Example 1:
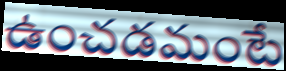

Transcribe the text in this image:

ఉంచడమంటే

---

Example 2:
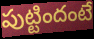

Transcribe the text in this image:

పుట్టిందంటే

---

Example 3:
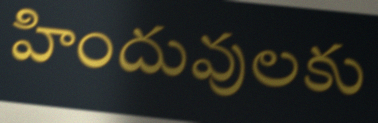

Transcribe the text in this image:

హిందువులకు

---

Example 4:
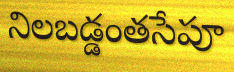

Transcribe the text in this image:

నిలబడ్డంతసేపూ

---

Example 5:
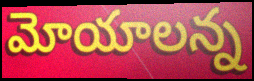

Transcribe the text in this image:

మోయాలన్న